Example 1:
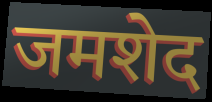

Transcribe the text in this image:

जमशेद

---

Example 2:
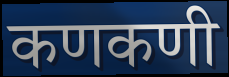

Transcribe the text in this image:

कणकणी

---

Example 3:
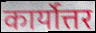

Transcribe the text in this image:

कार्योत्तर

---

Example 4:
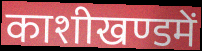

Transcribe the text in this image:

काशीखण्डमें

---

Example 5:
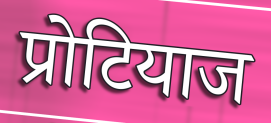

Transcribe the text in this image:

प्रोटियाज